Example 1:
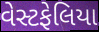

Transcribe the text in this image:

વેસ્ટફેલિયા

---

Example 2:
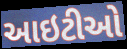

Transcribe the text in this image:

આઇટીઓ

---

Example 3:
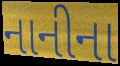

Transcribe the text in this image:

નાનીના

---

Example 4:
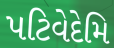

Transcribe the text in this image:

પટિવેદેમિ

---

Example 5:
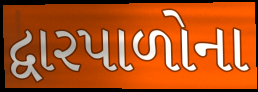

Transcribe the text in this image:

દ્વારપાળોના